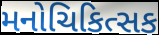
મનોચિકિત્સક